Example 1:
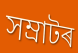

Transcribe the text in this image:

সম্ৰাটৰ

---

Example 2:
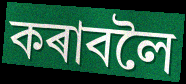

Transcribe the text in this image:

কৰাবলৈ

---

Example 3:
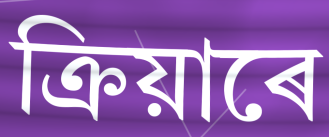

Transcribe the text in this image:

ক্ৰিয়াৰে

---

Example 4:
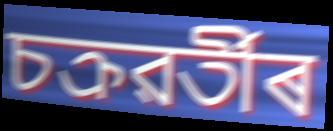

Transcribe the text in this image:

চক্ৰৱৰ্তীৰ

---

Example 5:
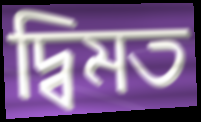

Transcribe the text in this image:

দ্বিমত